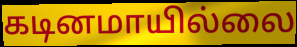
கடினமாயில்லை